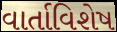
વાર્તાવિશેષ